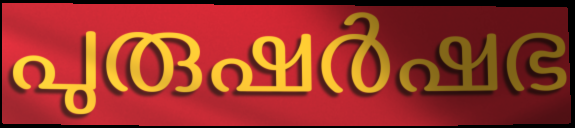
പുരുഷർഷഭ